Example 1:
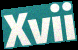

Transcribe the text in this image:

Xvii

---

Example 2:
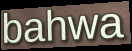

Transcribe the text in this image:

bahwa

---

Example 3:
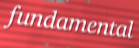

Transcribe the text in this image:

fundamental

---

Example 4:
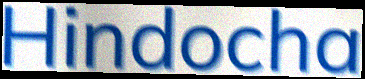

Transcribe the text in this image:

Hindocha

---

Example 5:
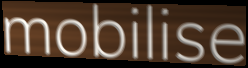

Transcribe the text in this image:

mobilise